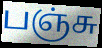
பஞ்சு